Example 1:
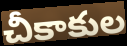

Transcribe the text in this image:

చీకాకుల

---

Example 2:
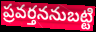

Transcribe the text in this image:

ప్రవర్తననుబట్టి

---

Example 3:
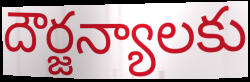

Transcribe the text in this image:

దౌర్జన్యాలకు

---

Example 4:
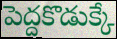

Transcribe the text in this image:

పెద్దకొడుక్కే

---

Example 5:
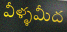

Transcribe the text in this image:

వీళ్ళమీద